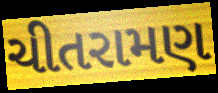
ચીતરામણ